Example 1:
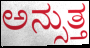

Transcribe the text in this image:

ಅನ್ಸುತ್ತ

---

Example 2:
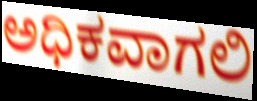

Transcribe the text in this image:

ಅಧಿಕವಾಗಲಿ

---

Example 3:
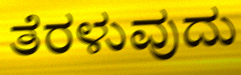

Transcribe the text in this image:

ತೆರಳುವುದು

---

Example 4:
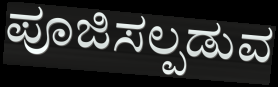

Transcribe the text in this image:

ಪೂಜಿಸಲ್ಪಡುವ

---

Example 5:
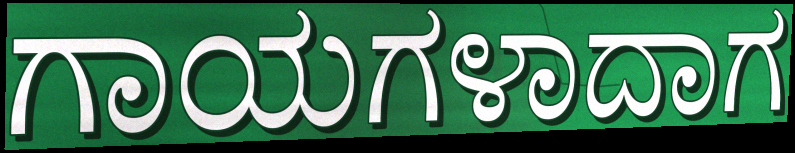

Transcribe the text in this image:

ಗಾಯಗಳಾದಾಗ